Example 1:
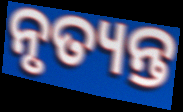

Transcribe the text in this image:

ନୃତ୍ୟନ୍ତ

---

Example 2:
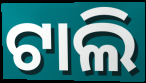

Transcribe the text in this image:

ଟାଲି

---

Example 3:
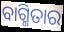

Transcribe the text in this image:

ବାଗ୍ମିତାର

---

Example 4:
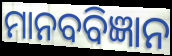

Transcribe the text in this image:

ମାନବବିଜ୍ଞାନ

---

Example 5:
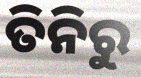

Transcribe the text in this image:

ତିନିରୁ